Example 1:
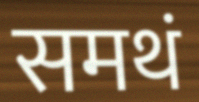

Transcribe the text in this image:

समथं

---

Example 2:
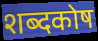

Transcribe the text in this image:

शब्दकोष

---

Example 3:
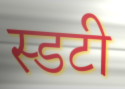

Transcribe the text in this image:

स्डटी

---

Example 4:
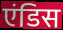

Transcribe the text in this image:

एंडिस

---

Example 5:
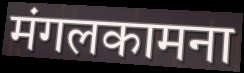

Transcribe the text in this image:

मंगलकामना